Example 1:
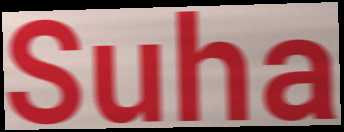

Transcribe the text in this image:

Suha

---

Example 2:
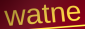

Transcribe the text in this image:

watne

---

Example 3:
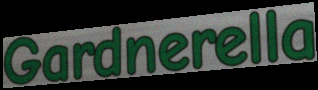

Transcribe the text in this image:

Gardnerella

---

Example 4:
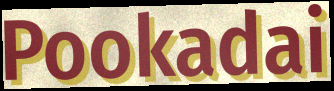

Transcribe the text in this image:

Pookadai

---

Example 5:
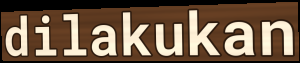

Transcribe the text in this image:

dilakukan